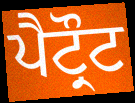
ਪੈਟ੍ਰੌਟ